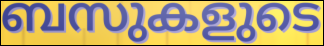
ബസുകളുടെ